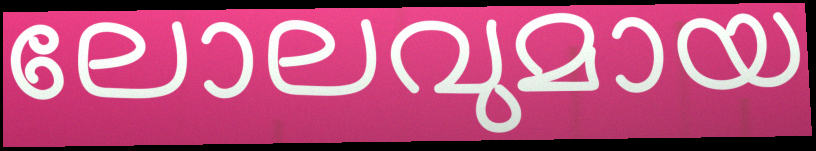
ലോലവുമായ